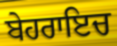
ਬੇਹਰਾਇਚ